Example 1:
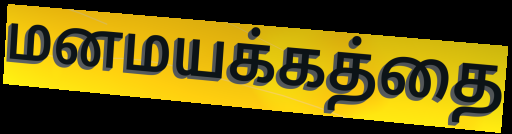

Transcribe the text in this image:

மனமயக்கத்தை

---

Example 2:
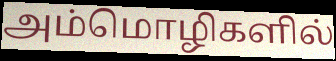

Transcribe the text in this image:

அம்மொழிகளில்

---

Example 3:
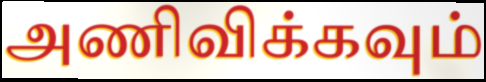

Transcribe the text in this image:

அணிவிக்கவும்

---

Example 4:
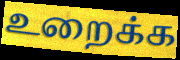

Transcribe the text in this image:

உறைக்க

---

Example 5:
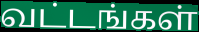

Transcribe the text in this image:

வட்டங்கள்